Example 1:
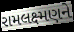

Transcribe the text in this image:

રામલક્ષ્મણને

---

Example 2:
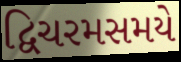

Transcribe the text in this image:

દ્વિચરમસમયે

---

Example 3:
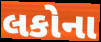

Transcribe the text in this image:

લકોના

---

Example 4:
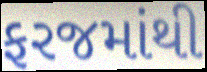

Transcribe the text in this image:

ફરજમાંથી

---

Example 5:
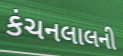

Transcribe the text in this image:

કંચનલાલની